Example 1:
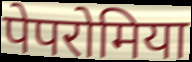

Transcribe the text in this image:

पेपरोमिया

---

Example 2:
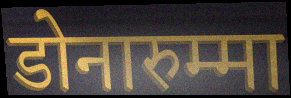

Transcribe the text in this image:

डोनारुम्मा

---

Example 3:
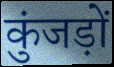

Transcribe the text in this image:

कुंजड़ों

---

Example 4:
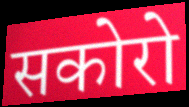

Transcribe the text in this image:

सकोरो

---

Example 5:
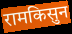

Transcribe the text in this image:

रामकिसुन